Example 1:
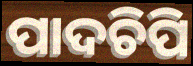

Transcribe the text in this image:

ପାଦଚିପି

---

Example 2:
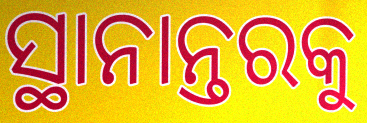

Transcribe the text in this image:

ସ୍ଥାନାନ୍ତରକୁ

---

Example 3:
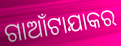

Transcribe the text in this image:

ଗାଆଁଟାଯାକର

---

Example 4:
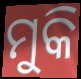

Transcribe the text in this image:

ମୁକି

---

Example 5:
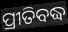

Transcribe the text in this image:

ପ୍ରୀତିବଦ୍ଧ